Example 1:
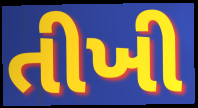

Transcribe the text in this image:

તીખી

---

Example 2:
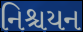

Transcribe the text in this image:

નિશ્ચયન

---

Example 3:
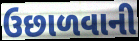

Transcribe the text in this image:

ઉછાળવાની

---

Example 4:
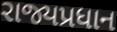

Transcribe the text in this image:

રાજ્યપ્રધાન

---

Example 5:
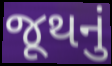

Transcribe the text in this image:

જૂથનું